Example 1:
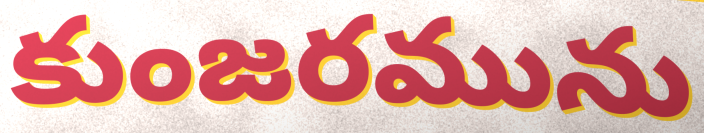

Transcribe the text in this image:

కుంజరమును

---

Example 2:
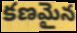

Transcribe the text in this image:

కణమైన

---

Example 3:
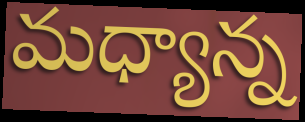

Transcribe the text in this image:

మధ్యాన్న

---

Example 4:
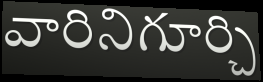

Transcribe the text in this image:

వారినిగూర్చి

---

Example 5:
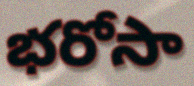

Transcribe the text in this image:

భరోసా